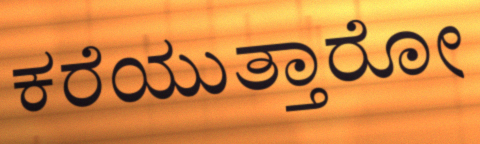
ಕರೆಯುತ್ತಾರೋ